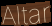
Altar